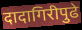
दादागिरीपुढे